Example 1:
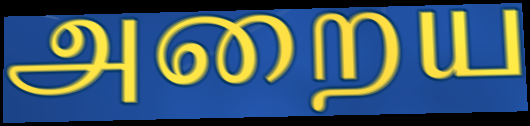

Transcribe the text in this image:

அறைய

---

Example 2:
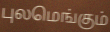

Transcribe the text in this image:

புலமெங்கும்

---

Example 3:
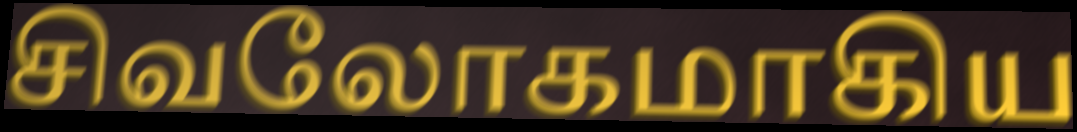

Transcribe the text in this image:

சிவலோகமாகிய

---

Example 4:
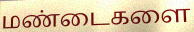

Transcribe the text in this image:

மண்டைகளை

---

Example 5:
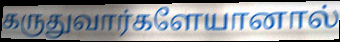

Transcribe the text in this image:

கருதுவார்களேயானால்